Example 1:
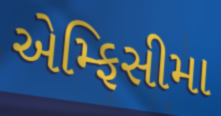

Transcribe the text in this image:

એમ્ફિસીમા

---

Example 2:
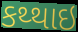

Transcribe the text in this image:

કથ્થાઇ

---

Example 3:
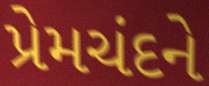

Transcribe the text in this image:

પ્રેમચંદને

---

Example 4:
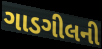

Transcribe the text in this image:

ગાડગીલની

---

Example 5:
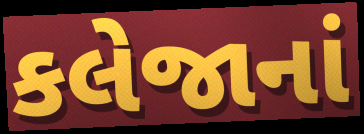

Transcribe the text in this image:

કલેજાનાં